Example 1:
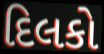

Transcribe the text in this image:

દિલકો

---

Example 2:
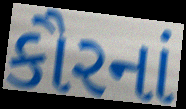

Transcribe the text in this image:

કૌરનાં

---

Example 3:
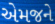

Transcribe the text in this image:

એમજને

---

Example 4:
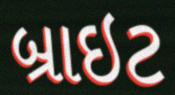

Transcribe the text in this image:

બ્રાઇટ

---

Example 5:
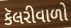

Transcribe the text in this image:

કૅલરીવાળો